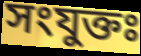
সংযুক্তঃ